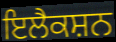
ਇਲੈਕਸ਼ਨ